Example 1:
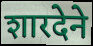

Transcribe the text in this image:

शारदेने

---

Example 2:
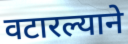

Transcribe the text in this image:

वटारल्याने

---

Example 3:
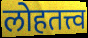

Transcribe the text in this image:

लोहतत्त्व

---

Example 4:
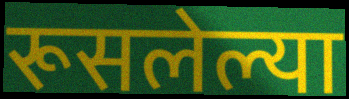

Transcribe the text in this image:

रूसलेल्या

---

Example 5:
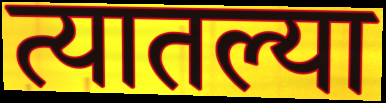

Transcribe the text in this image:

त्यातल्या